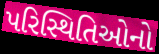
પરિસ્થિતિઓનો